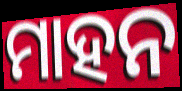
ମାହନ